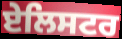
ਏਲਿਸਟਰ